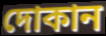
দোকান